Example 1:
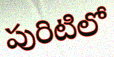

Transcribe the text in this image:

పురిటిలో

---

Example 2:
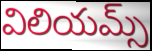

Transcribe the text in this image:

విలియమ్స్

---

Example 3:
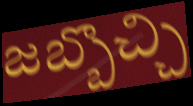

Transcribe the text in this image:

జబ్బొచ్చి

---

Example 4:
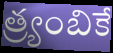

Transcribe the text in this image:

త్ర్యంబికే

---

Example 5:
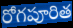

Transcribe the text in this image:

రోగపూరిత